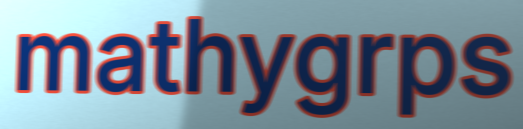
mathygrps